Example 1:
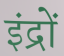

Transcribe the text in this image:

इंद्रों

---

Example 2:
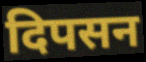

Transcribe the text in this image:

दिपसन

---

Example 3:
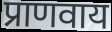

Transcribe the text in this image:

प्राणवाय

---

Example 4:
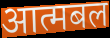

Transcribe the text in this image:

आत्मबल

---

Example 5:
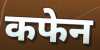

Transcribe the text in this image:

कफेन